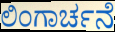
ಲಿಂಗಾರ್ಚನೆ